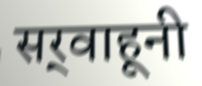
सर्वाहूनी